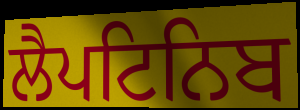
ਲੈਪਟਿਨਿਬ